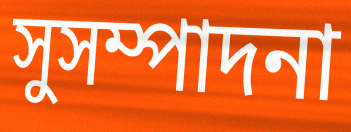
সুসম্পাদনা